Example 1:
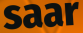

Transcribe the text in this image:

saar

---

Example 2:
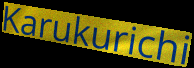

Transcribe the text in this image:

Karukurichi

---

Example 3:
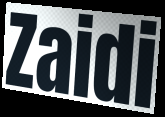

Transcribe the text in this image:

Zaidi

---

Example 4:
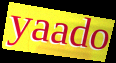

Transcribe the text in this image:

yaado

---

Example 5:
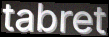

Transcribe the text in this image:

tabret